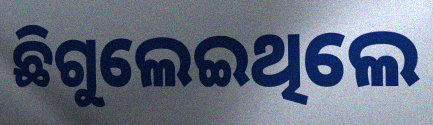
ଛିଗୁଲେଇଥିଲେ